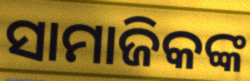
ସାମାଜିକଙ୍କ